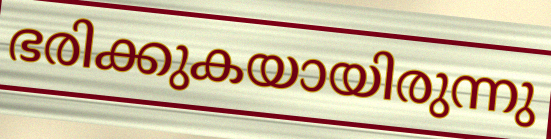
ഭരിക്കുകയായിരുന്നു